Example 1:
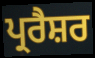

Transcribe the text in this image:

ਪ੍ਰਰੈਸ਼ਰ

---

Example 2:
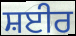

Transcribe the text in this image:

ਸ਼ਈਰ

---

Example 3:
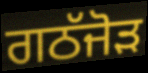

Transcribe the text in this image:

ਗਠੱਜੋੜ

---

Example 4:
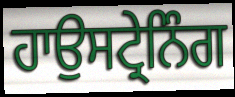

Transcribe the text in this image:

ਹਾਉਸਟ੍ਰੇਨਿੰਗ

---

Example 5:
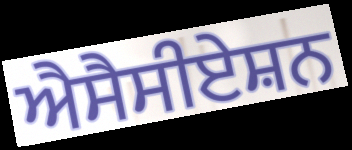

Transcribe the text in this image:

ਐਸੈਸੀਏਸ਼ਨ